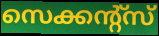
സെക്കന്റ്സ്